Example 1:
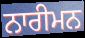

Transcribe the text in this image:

ਨਾਰੀਮਨ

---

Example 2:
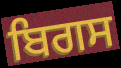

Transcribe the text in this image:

ਬਿਗਸ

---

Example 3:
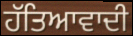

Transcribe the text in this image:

ਹੱਤਿਆਵਾਦੀ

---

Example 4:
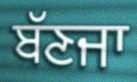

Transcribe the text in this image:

ਬੱਣਜਾ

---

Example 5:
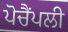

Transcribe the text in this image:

ਪੋਚੈਂਪਲੀ